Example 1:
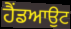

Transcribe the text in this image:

ਹੈਂਡਆਉਟ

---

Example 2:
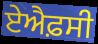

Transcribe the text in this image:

ਏਐਫ਼ਸੀ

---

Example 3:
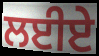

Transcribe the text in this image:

ਲਈਏ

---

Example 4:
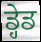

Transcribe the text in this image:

ਡ੍ਹੇਡ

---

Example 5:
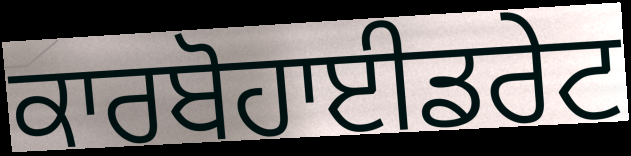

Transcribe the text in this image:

ਕਾਰਬੋਹਾਈਡਰੇਟ